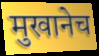
मुखानेच